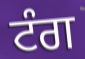
ਟੰਗ